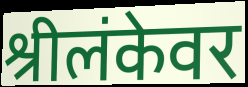
श्रीलंकेवर